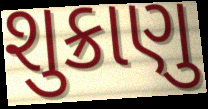
શુક્રાણુ